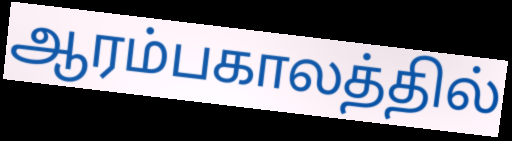
ஆரம்பகாலத்தில்